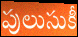
పులుసుకీ